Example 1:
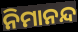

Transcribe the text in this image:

ନିମାନନ୍ଦ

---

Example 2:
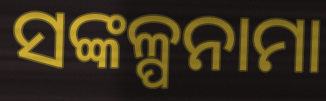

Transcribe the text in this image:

ସଙ୍କଳ୍ପନାମା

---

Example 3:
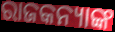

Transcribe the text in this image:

ରାଜକନ୍ୟାଙ୍କ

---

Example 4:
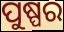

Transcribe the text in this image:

ପୁଷ୍ପର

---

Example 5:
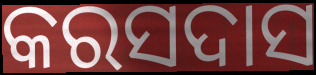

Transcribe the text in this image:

କରସଦାସ